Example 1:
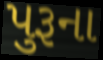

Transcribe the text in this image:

પુરૂના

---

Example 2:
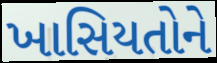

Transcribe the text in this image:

ખાસિયતોને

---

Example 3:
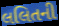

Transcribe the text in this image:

લલિતની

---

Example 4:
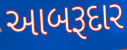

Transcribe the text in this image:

આબરૂદાર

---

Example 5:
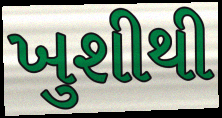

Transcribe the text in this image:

ખુશીથી